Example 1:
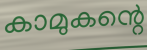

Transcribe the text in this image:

കാമുകന്റെ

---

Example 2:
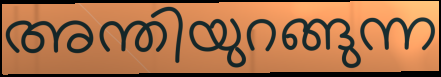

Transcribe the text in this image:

അന്തിയുറങ്ങുന്ന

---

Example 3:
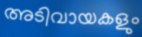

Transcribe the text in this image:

അടിവായകളും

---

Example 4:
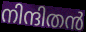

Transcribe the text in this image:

നിന്ദിതൻ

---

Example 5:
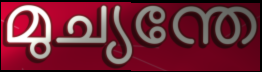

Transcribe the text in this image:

മുച്യന്തേ